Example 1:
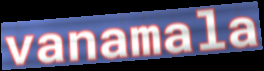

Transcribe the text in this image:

vanamala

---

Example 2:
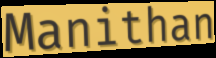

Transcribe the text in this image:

Manithan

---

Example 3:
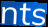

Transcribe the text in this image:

nts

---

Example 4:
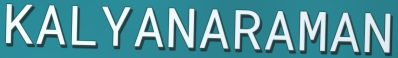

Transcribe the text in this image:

KALYANARAMAN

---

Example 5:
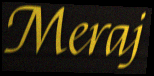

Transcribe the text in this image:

Meraj